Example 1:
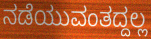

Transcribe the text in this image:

ನಡೆಯುವಂತದ್ದಲ್ಲ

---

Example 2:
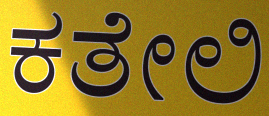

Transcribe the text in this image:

ಕತೇಲಿ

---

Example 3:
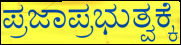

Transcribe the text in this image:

ಪ್ರಜಾಪ್ರಭುತ್ವಕ್ಕೆ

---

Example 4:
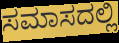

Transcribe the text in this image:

ಸಮಾಸದಲ್ಲಿ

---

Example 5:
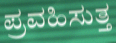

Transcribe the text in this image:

ಪ್ರವಹಿಸುತ್ತ